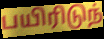
பயிரிடுந்